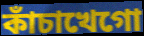
কাঁচাখেগো